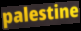
palestine